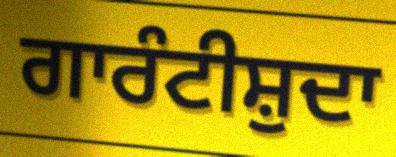
ਗਾਰੰਟੀਸ਼ੁਦਾ